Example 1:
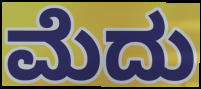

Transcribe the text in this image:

ಮೆದು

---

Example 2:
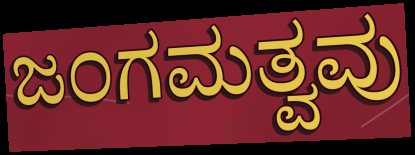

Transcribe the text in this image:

ಜಂಗಮತ್ವವು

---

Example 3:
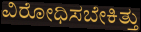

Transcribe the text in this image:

ವಿರೋಧಿಸಬೇಕಿತ್ತು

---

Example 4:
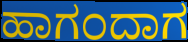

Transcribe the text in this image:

ಹಾಗಂದಾಗ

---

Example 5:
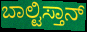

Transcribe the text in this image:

ಬಾಲ್ಟಿಸ್ತಾನ್